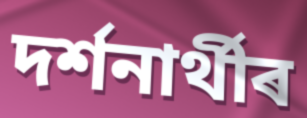
দৰ্শনাৰ্থীৰ